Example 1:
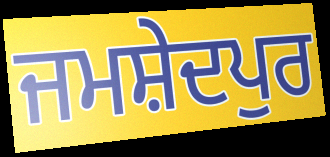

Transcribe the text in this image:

ਜਮਸ਼ੇਦਪੁਰ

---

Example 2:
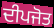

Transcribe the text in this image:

ਦੀਪਜੋਤ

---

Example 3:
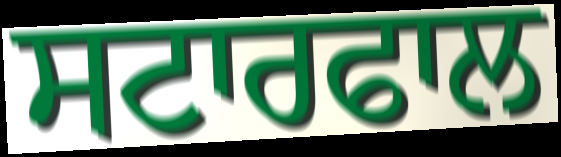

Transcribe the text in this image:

ਸਟਾਰਫਾਲ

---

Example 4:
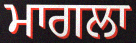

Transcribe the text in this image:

ਮਾਗਲਾ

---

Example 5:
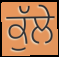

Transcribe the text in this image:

ਕੁੱਲੇ